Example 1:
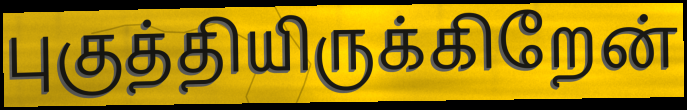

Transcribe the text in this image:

புகுத்தியிருக்கிறேன்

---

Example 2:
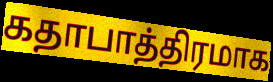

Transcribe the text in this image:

கதாபாத்திரமாக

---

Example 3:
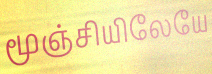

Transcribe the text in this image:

மூஞ்சியிலேயே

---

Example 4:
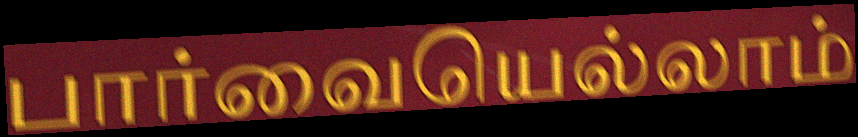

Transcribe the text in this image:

பார்வையெல்லாம்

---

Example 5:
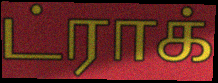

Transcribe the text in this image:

ட்ராக்